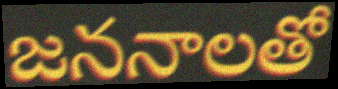
జననాలతో